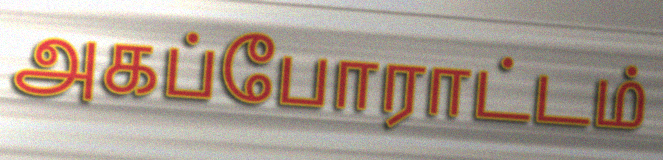
அகப்போராட்டம்